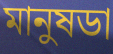
মানুষডা